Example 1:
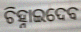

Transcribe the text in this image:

ଚିହ୍ନାଇଦେବ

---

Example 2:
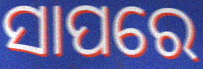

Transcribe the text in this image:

ସାପରେ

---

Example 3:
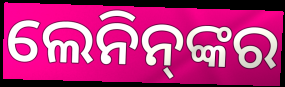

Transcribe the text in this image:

ଲେନିନ୍‌ଙ୍କର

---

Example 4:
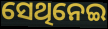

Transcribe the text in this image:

ସେଥିନେଇ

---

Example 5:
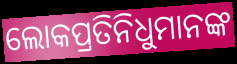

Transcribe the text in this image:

ଲୋକପ୍ରତିନିଧୁମାନଙ୍କ